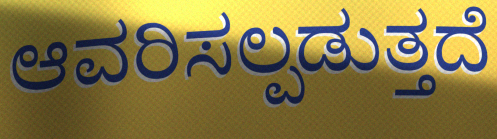
ಆವರಿಸಲ್ಪಡುತ್ತದೆ